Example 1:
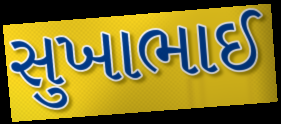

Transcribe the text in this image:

સુખાભાઈ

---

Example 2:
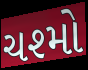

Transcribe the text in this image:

ચશ્મો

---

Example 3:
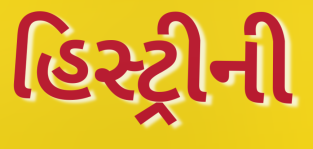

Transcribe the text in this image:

હિસ્ટ્રીની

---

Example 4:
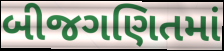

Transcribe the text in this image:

બીજગણિતમાં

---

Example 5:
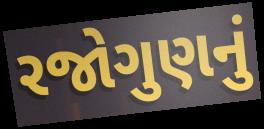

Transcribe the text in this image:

રજોગુણનું